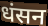
धंसन